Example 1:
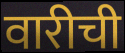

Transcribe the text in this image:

वारीची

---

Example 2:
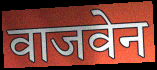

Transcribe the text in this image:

वाजवेन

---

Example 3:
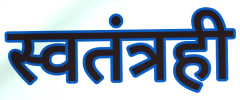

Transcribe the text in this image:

स्वतंत्रही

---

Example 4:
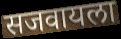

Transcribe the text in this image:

सजवायला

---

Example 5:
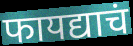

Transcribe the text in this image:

फायद्याचं